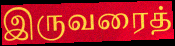
இருவரைத்